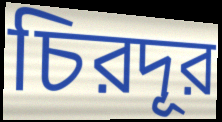
চিরদূর